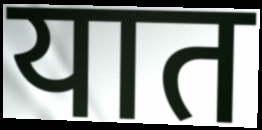
यात